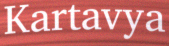
Kartavya